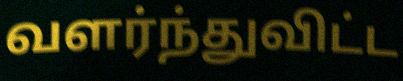
வளர்ந்துவிட்ட